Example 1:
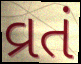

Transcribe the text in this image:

વ્રતં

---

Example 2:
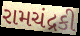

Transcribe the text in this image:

રામચંદ્રકી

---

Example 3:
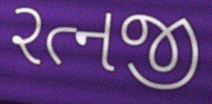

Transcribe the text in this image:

રત્નજી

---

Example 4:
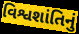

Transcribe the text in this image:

વિશ્વશાંતિનું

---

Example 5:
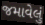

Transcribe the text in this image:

જમાવેલું